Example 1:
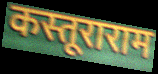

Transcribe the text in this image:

कस्तूराराम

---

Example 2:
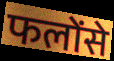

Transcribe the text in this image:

फलोंसे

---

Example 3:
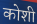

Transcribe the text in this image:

कोशी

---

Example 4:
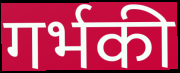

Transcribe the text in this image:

गर्भकी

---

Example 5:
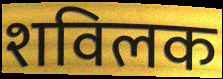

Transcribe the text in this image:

शविलक